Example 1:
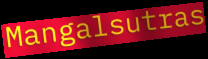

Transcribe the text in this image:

Mangalsutras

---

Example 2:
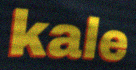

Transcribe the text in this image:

kale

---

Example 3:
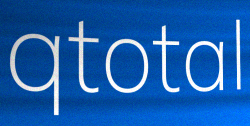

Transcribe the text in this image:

qtotal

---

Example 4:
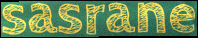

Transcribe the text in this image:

sasrane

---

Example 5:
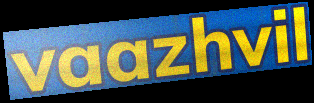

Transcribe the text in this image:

vaazhvil